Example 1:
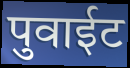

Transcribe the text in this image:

पुवाईट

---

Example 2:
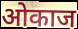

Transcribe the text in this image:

ओकाज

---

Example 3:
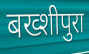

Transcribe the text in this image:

बख्शीपुरा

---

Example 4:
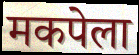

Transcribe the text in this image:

मकपेला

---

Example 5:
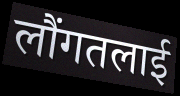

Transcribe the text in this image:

लौंगतलाई